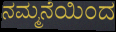
ನಮ್ಮನೆಯಿಂದ